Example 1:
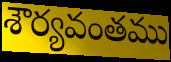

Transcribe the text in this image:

శౌర్యవంతము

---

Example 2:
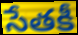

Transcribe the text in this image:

సేతకీ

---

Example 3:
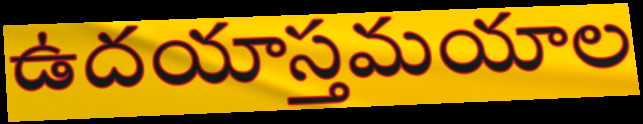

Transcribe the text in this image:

ఉదయాస్తమయాల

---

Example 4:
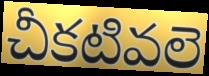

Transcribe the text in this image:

చీకటివలె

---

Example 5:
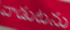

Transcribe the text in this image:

వాడుటను